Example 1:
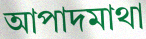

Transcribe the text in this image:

আপাদমাথা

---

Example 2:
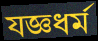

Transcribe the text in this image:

যজ্ঞধর্ম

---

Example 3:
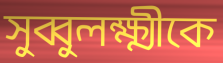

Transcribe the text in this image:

সুব্বুলক্ষ্মীকে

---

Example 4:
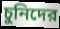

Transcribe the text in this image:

চুনিদের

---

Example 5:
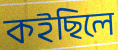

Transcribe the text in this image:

কইছিলে